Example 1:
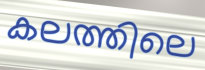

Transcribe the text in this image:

കലത്തിലെ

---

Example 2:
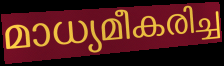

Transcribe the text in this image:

മാധ്യമീകരിച്ച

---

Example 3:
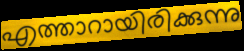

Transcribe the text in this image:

എത്താറായിരിക്കുന്നു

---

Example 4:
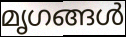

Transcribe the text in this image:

മൃഗങ്ങൾ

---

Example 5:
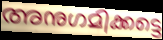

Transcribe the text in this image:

അനുഗമിക്കട്ടെ